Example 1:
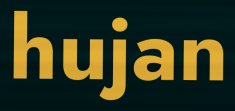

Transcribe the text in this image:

hujan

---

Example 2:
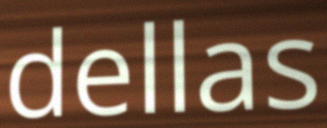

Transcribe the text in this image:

dellas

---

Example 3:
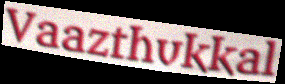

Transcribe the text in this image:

Vaazthukkal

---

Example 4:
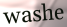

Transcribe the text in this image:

washe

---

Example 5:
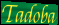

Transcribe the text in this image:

Tadoba